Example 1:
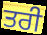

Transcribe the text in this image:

ਤਰੀ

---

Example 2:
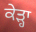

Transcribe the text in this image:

ਕੇੜ੍ਹਾ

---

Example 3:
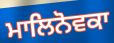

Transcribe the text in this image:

ਮਾਲਿਨੋਵਕਾ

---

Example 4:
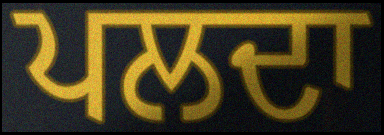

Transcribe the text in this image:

ਪਲਦਾ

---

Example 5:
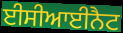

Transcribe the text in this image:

ਈਸੀਆਈਨੈਟ